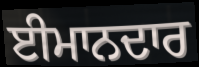
ਈਮਾਨਦਾਰ